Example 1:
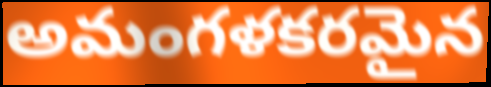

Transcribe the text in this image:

అమంగళకరమైన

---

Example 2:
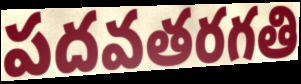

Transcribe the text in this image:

పదవతరగతి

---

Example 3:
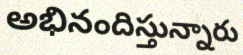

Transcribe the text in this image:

అభినందిస్తున్నారు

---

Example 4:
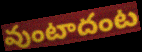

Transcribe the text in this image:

వుంటాదంట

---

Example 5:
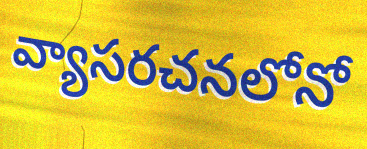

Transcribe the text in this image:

వ్యాసరచనలోనో